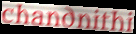
chandnithi